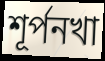
শূর্পনখা